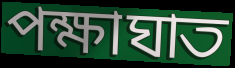
পক্ষাঘাত